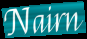
Nairn